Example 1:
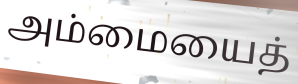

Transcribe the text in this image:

அம்மையைத்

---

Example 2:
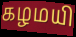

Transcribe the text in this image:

கழமயி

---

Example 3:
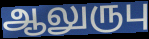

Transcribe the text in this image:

ஆலுருபு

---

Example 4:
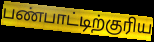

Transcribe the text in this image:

பண்பாட்டிற்குரிய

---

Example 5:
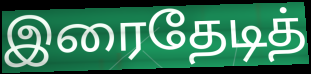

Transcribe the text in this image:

இரைதேடித்